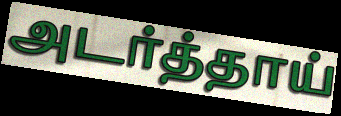
அடர்த்தாய்